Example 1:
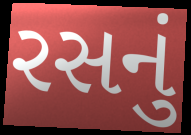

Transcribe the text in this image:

રસનું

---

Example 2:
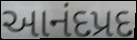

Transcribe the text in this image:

આનંદપ્રદ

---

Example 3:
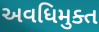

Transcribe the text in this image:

અવધિમુક્ત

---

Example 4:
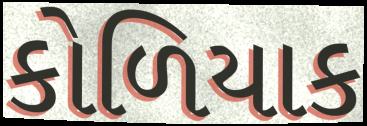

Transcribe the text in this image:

કોળિયાક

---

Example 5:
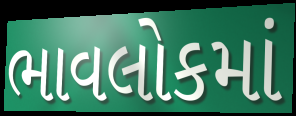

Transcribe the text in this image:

ભાવલોકમાં